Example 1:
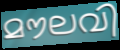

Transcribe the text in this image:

മൗലവി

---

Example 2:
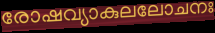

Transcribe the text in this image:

രോഷവ്യാകുലലോചനഃ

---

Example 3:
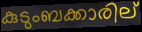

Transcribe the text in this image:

കുടുംബക്കാരില്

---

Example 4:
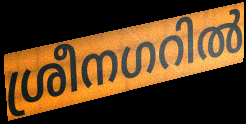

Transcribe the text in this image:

ശ്രീനഗറിൽ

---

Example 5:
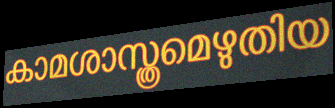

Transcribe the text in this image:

കാമശാസ്ത്രമെഴുതിയ